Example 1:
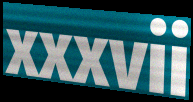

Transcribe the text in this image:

xxxvii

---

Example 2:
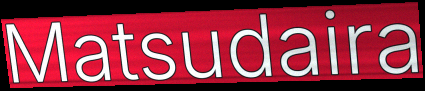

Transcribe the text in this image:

Matsudaira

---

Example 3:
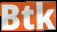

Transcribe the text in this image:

Btk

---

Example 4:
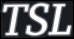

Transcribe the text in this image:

TSL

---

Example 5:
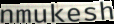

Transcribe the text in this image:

nmukesh